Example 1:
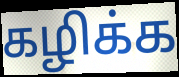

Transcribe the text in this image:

கழிக்க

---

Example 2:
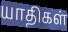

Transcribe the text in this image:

யாதிகள்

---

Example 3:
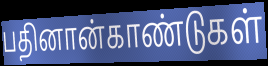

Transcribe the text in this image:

பதினான்காண்டுகள்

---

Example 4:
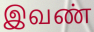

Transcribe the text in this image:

இவண்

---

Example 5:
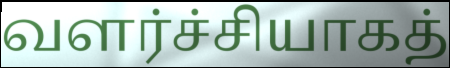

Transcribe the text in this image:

வளர்ச்சியாகத்